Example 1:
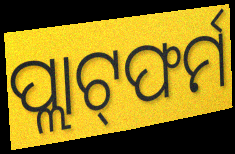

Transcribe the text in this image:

ପ୍ଲାଟ୍‌ଫର୍ମ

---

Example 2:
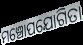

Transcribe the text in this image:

ମଞ୍ଚୋପଯୋଗିତା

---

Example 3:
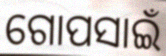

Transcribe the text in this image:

ଗୋପସାଇଁ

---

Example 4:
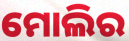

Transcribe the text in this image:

ମୋଲିର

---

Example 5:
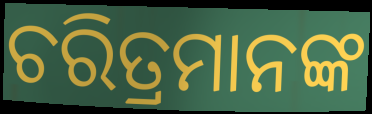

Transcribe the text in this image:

ଚରିତ୍ରମାନଙ୍କ